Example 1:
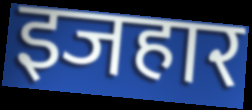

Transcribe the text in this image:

इजहार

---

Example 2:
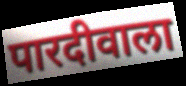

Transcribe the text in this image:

पारदीवाला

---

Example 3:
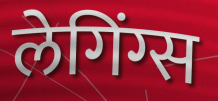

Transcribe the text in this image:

लेगिंग्स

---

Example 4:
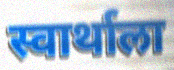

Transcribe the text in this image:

स्वार्थाला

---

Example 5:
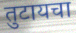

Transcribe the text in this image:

तुटायचा